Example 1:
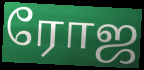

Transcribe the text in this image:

ரோஜ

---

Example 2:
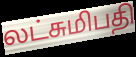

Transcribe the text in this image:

லட்சுமிபதி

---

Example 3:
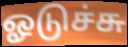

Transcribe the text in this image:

ஓடுச்சு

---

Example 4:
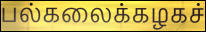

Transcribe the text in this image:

பல்கலைக்கழகச்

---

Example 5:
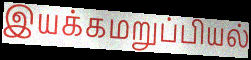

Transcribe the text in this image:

இயக்கமறுப்பியல்